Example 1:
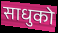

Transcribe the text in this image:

साधुको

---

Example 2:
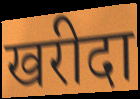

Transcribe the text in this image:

खरीदा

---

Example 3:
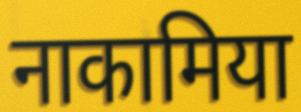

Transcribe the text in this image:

नाकामिया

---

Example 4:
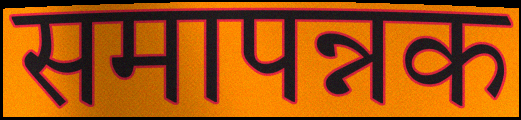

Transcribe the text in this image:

समापन्नक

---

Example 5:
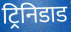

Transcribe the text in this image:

ट्रिनिडाड